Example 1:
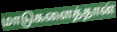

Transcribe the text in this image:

மாடுகளைத்தான்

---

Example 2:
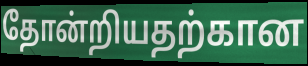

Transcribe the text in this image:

தோன்றியதற்கான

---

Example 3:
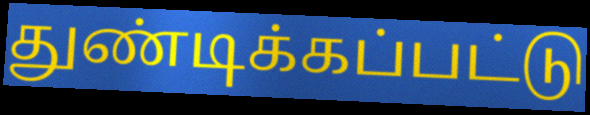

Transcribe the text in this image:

துண்டிக்கப்பட்டு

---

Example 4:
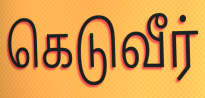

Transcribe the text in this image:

கெடுவீர்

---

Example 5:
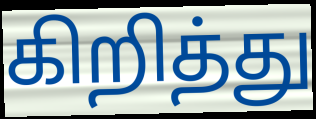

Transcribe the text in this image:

கிறித்து